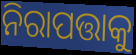
ନିରାପତ୍ତାକୁ